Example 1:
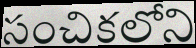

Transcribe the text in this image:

సంచికలోని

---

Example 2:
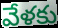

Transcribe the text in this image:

వేళకు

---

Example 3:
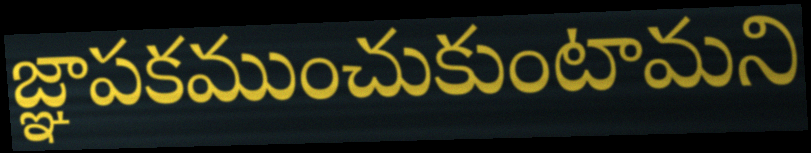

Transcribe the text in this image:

జ్ఞాపకముంచుకుంటామని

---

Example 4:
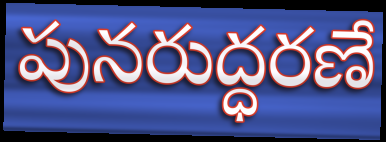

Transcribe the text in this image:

పునరుద్ధరణే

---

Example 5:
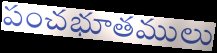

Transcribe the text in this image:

పంచభూతములు